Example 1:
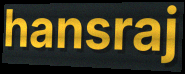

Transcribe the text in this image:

hansraj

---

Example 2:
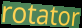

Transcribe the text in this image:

rotator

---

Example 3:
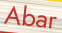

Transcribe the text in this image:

Abar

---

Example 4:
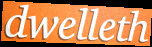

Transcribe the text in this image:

dwelleth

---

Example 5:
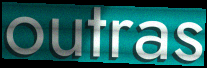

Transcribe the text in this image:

outras